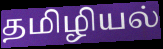
தமிழியல்